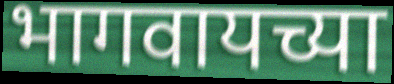
भागवायच्या